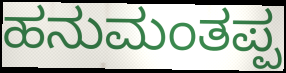
ಹನುಮಂತಪ್ಪ